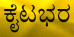
ಕೈಟಭರ